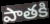
పాతకి